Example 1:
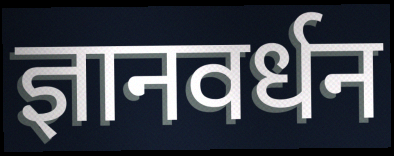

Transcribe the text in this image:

ज्ञानवर्धन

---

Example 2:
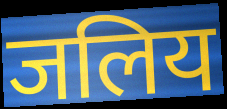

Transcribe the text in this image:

जलिय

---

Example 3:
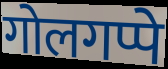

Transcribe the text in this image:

गोलगप्पे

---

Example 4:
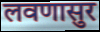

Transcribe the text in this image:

लवणासुर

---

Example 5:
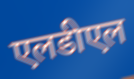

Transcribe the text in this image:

एलडीएल